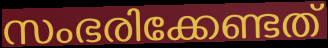
സംഭരിക്കേണ്ടത്